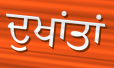
ਦੁਖਾਂਤਾਂ